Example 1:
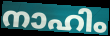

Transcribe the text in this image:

നാഹിം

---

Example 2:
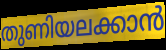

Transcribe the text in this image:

തുണിയലക്കാൻ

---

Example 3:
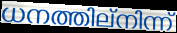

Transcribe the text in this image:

ധനത്തില്നിന്ന്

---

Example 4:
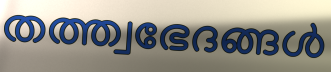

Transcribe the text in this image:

തത്ത്വഭേദങ്ങൾ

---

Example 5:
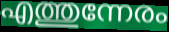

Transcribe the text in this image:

എത്തുന്നേരം